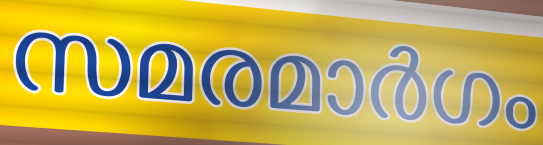
സമരമാർഗം